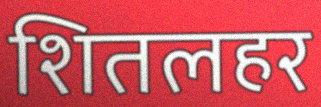
शितलहर